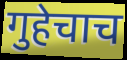
गुहेचाच